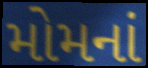
મોમનાં